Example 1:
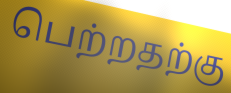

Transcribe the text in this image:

பெற்றதற்கு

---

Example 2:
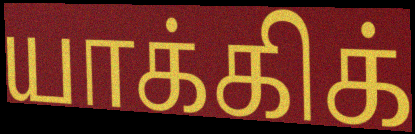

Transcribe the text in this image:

யாக்கிக்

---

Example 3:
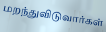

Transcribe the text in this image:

மறந்துவிடுவார்கள்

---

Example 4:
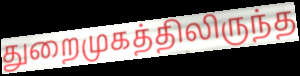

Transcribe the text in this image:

துறைமுகத்திலிருந்த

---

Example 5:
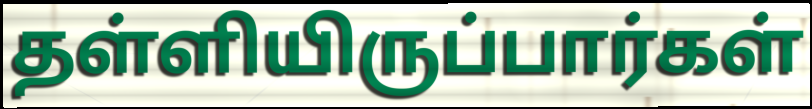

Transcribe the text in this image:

தள்ளியிருப்பார்கள்